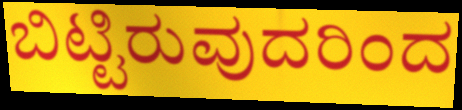
ಬಿಟ್ಟಿರುವುದರಿಂದ